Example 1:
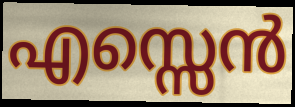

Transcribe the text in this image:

എസ്സെൻ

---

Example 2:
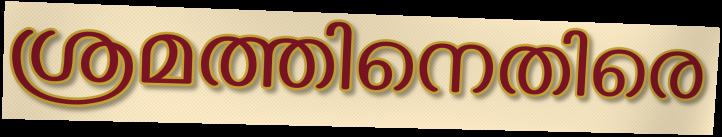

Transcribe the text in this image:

ശ്രമത്തിനെതിരെ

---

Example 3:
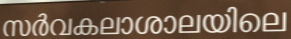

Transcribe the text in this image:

സർവകലാശാലയിലെ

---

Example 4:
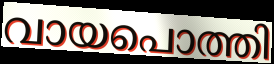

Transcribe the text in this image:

വായപൊത്തി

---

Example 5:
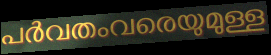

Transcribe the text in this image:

പർവതംവരെയുമുള്ള